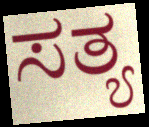
ಸತ್ಯ